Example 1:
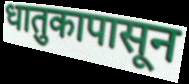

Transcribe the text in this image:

धातुकापासून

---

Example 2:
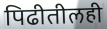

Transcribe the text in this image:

पिढीतीलही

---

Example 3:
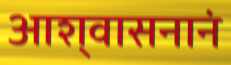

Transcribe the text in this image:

आश्वासनानं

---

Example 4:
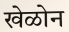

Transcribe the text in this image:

खेळोन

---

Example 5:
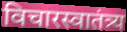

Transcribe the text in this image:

विचारस्वातंत्र्य